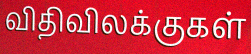
விதிவிலக்குகள்